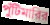
পুঁটিমারির